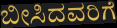
ಬೀಸಿದವರಿಗೆ